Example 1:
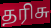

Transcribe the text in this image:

தரிசு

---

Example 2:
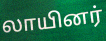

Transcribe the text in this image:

லாயினர்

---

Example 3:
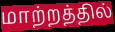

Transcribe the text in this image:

மாற்றத்தில்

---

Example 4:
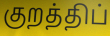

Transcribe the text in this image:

குறத்திப்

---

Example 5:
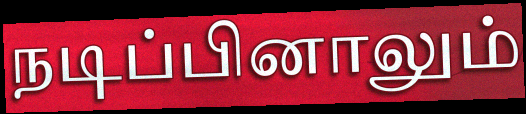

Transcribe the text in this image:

நடிப்பினாலும்